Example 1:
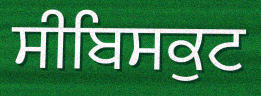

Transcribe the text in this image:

ਸੀਬਿਸਕੁਟ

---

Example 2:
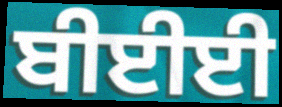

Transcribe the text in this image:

ਬੀਈਈ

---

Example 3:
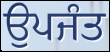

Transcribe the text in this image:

ਉਪਜੰਤ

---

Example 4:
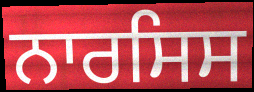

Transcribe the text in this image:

ਨਾਰਸਿਸ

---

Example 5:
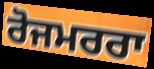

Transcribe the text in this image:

ਰੋਜਮਰਰਾ